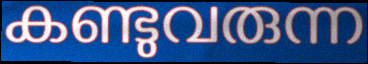
കണ്ടുവരുന്ന